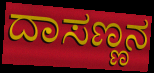
ದಾಸಣ್ಣನ